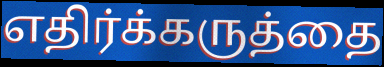
எதிர்க்கருத்தை